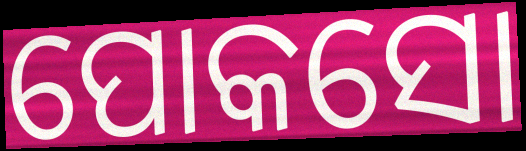
ପୋକସୋ